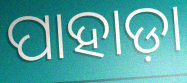
ପାହାଡ଼ା